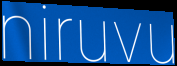
niruvu